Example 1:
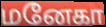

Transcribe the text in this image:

மனேகா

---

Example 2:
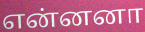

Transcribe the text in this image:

என்னனா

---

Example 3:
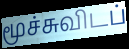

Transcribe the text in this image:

மூச்சுவிடப்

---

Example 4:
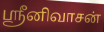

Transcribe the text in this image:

ஸ்ரீனிவாசன்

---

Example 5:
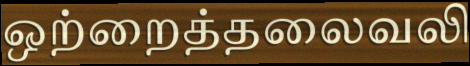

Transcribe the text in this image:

ஒற்றைத்தலைவலி